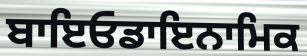
ਬਾਇਓਡਾਇਨਾਮਿਕ